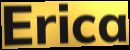
Erica